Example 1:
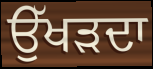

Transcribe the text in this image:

ਉੱਖੜਦਾ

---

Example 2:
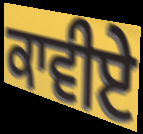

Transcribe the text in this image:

ਕਾਵੀਏ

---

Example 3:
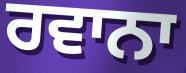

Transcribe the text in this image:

ਰਵਾਨਾ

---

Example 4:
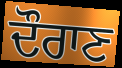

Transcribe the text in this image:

ਦੌਰਾਣ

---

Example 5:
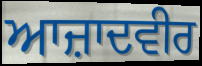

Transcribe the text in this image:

ਆਜ਼ਾਦਵੀਰ